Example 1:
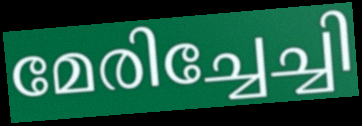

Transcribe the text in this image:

മേരിച്ചേച്ചി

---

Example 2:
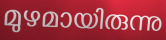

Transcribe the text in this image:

മുഴമായിരുന്നു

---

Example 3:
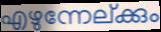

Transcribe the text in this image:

എഴുന്നേല്ക്കും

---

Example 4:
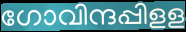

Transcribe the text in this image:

ഗോവിന്ദപ്പിളള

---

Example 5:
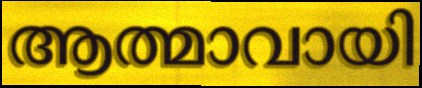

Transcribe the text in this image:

ആത്മാവായി